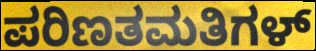
ಪರಿಣತಮತಿಗಳ್